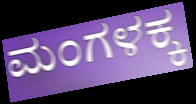
ಮಂಗಳಕ್ಕ